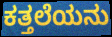
ಕತ್ತಲೆಯನು